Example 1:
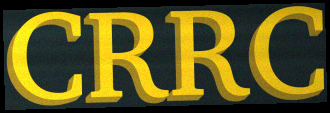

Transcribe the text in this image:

CRRC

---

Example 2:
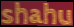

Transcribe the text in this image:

shahu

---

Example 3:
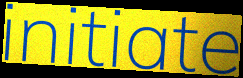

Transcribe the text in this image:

initiate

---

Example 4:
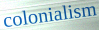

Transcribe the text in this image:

colonialism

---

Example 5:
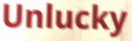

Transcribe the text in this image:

Unlucky